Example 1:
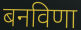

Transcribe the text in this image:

बनविणा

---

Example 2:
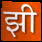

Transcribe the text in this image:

झी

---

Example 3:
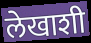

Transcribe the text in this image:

लेखाशी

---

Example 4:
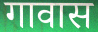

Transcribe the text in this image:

गावास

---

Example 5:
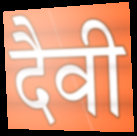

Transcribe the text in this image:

दैवी